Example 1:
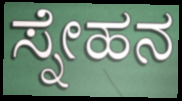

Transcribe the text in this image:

ಸ್ನೇಹನ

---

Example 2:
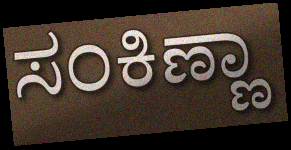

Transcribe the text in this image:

ಸಂಕಿಣ್ಣಾ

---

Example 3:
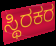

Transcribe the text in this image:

ಸ್ಥಿರಕರ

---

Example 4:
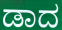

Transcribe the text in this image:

ಡಾದ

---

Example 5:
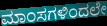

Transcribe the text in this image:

ಮಾಂಸಗಳಿಂದಲೇ